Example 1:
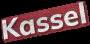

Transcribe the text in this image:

Kassel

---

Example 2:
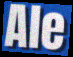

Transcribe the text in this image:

Ale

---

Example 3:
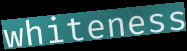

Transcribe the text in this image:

whiteness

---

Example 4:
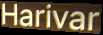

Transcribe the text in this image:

Harivar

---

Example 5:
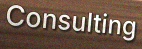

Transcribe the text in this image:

Consulting